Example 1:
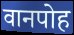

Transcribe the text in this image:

वानपोह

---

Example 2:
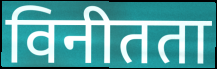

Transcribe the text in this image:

विनीतता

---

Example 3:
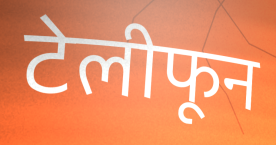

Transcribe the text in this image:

टेलीफून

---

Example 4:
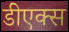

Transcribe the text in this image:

डीएक्स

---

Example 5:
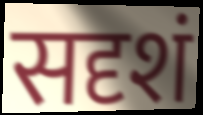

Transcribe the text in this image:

सदृशं